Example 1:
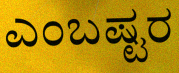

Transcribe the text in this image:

ಎಂಬಷ್ಟರ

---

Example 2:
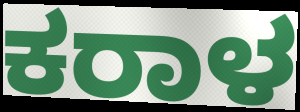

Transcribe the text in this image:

ಕರಾಳ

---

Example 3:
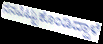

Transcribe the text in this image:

ನೆನಪಿಟ್ಟುಕೊಂಡಿದ್ದಾಳೆ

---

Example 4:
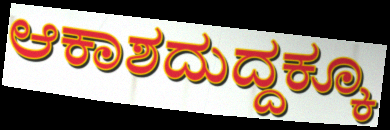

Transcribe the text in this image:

ಆಕಾಶದುದ್ದಕ್ಕೂ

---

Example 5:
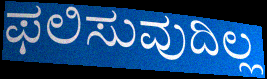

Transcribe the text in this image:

ಫಲಿಸುವುದಿಲ್ಲ